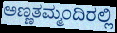
ಅಣ್ಣತಮ್ಮಂದಿರಲ್ಲಿ